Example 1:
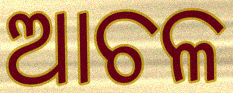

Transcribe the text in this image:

ଆଚଳ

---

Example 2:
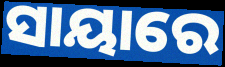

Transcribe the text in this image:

ସାୟାରେ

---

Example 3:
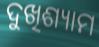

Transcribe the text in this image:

ଦୁଖିଶ୍ୟାମ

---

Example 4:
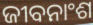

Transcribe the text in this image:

ଜୀବନାଂଶ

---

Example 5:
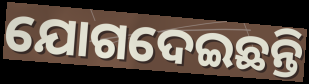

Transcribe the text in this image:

ଯୋଗଦେଇଛନ୍ତି